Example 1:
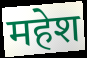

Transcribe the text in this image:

महेश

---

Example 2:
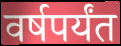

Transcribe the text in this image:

वर्षपर्यंत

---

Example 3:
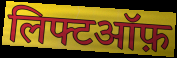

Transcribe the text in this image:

लिफ्टऑफ़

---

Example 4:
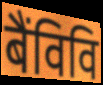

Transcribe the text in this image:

बैंविवि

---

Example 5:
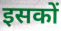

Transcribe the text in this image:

इसकों